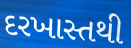
દરખાસ્તથી